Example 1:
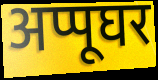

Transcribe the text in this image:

अप्पूघर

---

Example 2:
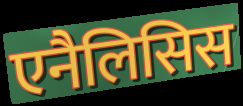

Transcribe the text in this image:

एनैलिसिस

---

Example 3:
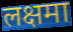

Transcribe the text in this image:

लक्षमा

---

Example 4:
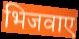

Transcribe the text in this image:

भिजवाए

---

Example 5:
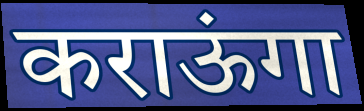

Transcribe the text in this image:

कराऊंगा